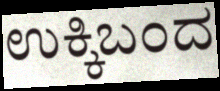
ಉಕ್ಕಿಬಂದ